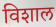
विशाल